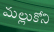
మల్లుకోని